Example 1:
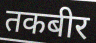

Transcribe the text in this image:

तकबीर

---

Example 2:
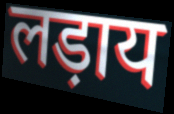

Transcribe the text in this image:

लड़ाय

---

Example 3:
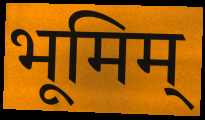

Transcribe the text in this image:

भूमिम्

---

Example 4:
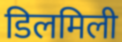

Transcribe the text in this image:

डिलमिली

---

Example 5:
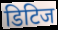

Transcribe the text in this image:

डिटिज